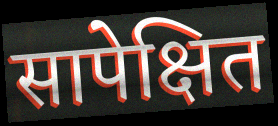
सापेक्षित